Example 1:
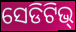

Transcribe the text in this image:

ସେଡିଟିଭ୍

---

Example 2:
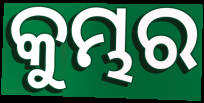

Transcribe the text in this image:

କୁମ୍ଭର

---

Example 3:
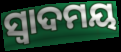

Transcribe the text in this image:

ସ୍ଵାଦମୟ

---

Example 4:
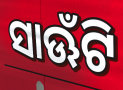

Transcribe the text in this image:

ସାଊଁଟି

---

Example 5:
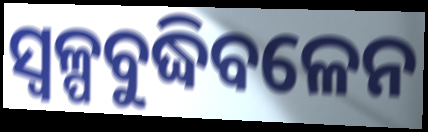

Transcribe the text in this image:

ସ୍ଵଳ୍ପବୁଦ୍ଧିବଳେନ